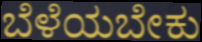
ಬೆಳೆಯಬೇಕು